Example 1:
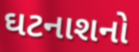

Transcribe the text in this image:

ઘટનાશનો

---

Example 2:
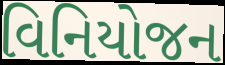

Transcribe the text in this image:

વિનિયોજન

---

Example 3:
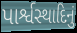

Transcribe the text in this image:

પાર્શ્વસ્થાદિનું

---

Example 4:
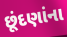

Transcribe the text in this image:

છૂંદણાંના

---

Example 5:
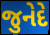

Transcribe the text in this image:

જુનેદે